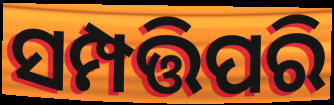
ସମ୍ପତ୍ତିପରି